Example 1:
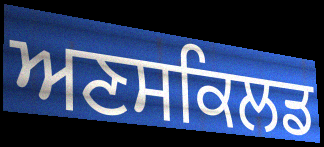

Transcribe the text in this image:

ਅਣਸਕਿਲਡ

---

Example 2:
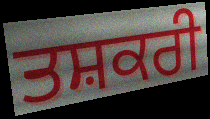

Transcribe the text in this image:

ਤਸ਼ਕਰੀ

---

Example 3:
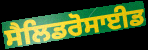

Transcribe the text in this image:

ਸੈਲਿਡਰੋਸਾਈਡ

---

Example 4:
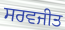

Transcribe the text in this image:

ਸਰਵਜੀਤ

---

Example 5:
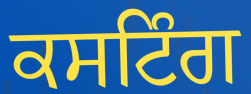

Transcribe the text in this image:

ਕਸਟਿੰਗ